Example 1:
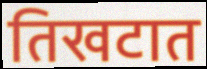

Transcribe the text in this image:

तिखटात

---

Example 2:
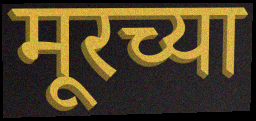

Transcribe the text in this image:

मूरच्या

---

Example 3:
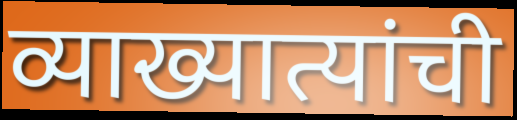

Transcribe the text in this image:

व्याख्यात्यांची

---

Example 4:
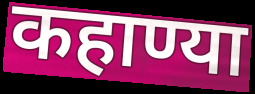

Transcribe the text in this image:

कहाण्या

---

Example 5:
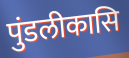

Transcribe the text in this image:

पुंडलीकासि